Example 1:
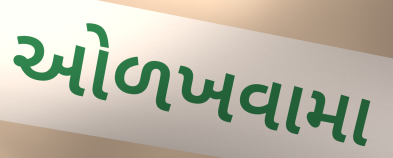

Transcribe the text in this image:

ઓળખવામા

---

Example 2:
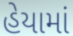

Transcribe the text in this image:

હેયામાં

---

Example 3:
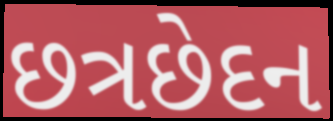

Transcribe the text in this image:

છત્રછેદન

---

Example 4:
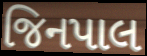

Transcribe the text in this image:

જિનપાલ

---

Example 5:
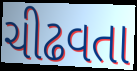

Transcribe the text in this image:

ચીઢવતા